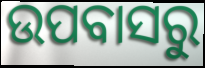
ଉପବାସରୁ